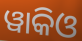
ୱାକିଓ